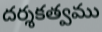
దర్శకత్వము